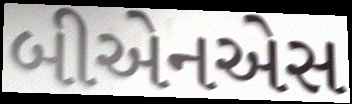
બીએનએસ